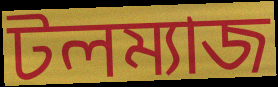
টলম্যাজ